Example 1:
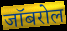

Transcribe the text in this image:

जॉबरोल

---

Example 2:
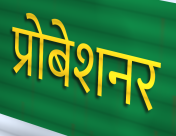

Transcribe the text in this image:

प्रोबेशनर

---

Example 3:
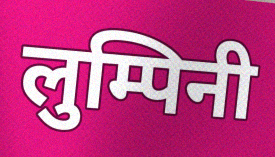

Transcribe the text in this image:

लुम्पिनी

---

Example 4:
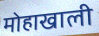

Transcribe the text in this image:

मोहाखाली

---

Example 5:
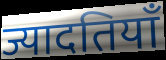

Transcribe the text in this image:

ज्यादतियाँ